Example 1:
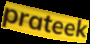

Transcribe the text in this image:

prateek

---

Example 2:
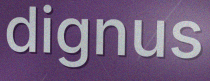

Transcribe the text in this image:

dignus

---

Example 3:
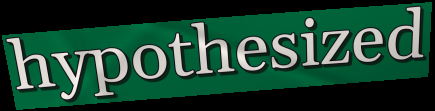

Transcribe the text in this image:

hypothesized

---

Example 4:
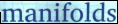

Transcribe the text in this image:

manifolds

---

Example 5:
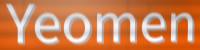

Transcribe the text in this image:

Yeomen